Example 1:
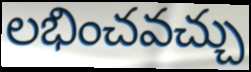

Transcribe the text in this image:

లభించవచ్చు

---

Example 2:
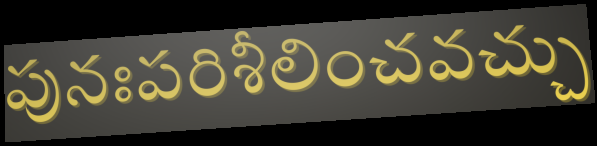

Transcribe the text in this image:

పునఃపరిశీలించవచ్చు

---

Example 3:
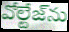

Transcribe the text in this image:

వోల్టేజ్‌ను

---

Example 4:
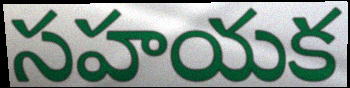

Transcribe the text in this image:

సహయక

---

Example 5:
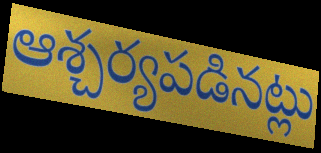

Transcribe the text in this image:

ఆశ్చర్యపడినట్లు